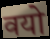
वयो